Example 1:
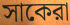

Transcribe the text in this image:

সাকেরা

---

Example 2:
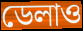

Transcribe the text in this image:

ডেলাও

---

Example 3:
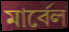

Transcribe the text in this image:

মার্বেল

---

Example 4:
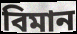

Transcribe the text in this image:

বিমান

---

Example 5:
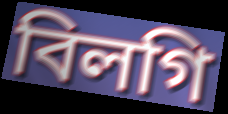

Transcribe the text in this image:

বিলগি